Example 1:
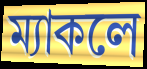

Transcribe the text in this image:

ম্যাকলে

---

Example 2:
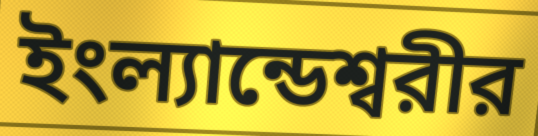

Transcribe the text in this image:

ইংল্যান্ডেশ্বরীর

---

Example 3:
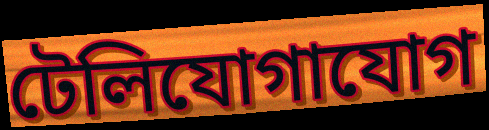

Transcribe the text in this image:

টেলিযোগাযোগ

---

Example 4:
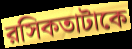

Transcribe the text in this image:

রসিকতাটাকে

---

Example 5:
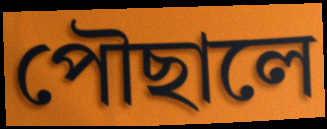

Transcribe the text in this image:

পৌছালে